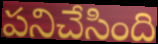
పనిచేసింది